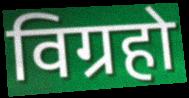
विग्रहो